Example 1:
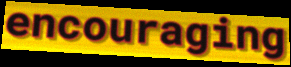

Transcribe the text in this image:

encouraging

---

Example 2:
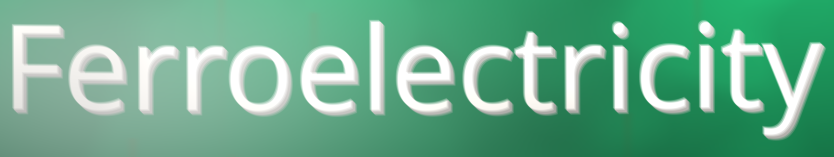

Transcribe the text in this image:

Ferroelectricity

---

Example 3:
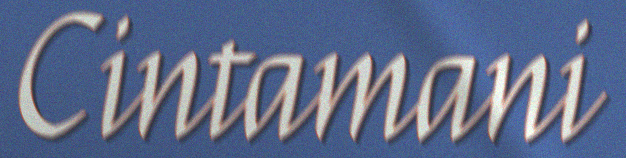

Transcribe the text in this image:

Cintamani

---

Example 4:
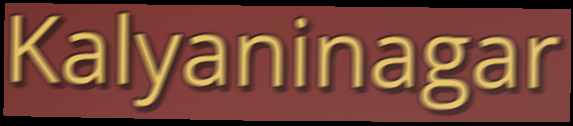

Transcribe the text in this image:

Kalyaninagar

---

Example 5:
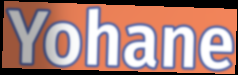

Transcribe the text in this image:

Yohane